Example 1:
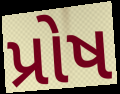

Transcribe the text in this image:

પ્રોષ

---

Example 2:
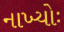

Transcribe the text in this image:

નાખ્યોઃ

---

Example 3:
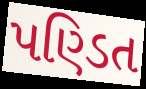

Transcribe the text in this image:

પણ્ડિત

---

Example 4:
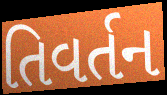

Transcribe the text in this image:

તિવર્તન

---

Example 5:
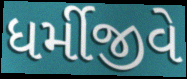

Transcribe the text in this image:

ધર્મીજીવે